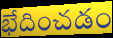
భేదించడం